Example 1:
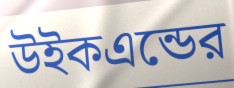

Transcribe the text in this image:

উইকএন্ডের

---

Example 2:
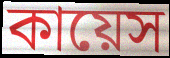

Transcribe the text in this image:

কায়েস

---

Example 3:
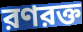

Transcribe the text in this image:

রণরক্ত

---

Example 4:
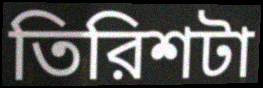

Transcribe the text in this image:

তিরিশটা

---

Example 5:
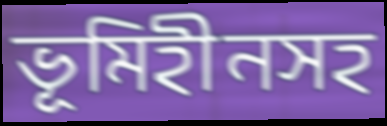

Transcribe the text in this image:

ভূমিহীনসহ